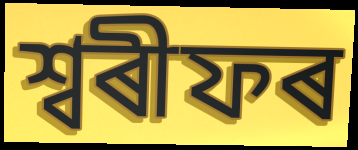
শ্বৰীফৰ